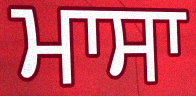
ਮਾਸਾ